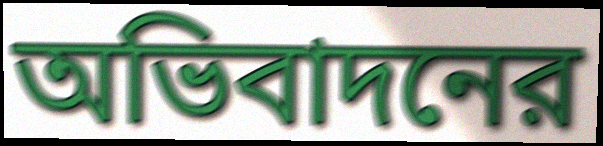
অভিবাদনের